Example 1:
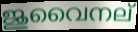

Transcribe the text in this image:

ജുവൈനല്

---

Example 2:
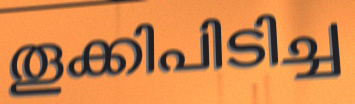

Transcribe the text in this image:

തൂക്കിപിടിച്ച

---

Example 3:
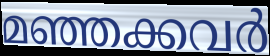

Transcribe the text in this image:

മഞ്ഞക്കവർ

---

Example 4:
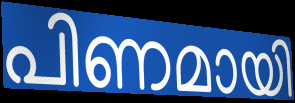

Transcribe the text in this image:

പിണമായി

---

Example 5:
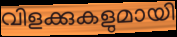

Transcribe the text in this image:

വിളക്കുകളുമായി